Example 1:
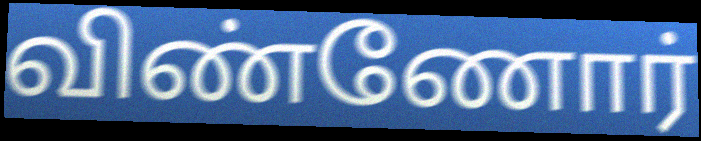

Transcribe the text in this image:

விண்ணோர்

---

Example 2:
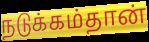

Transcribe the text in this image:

நடுக்கம்தான்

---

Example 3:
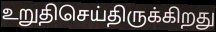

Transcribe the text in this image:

உறுதிசெய்திருக்கிறது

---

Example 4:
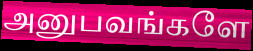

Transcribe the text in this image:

அனுபவங்களே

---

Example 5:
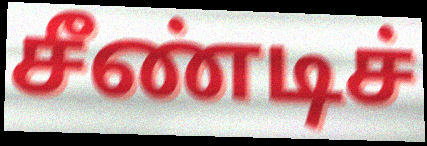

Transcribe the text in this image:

சீண்டிச்